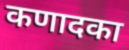
कणादका